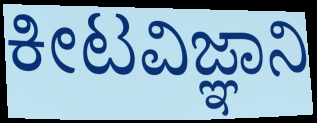
ಕೀಟವಿಜ್ಞಾನಿ